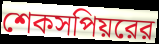
শেকসপিয়রের